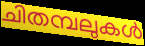
ചിതമ്പലുകൾ